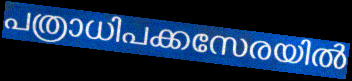
പത്രാധിപക്കസേരയിൽ